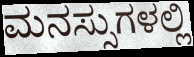
ಮನಸ್ಸುಗಳಲ್ಲಿ